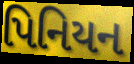
પિનિયન